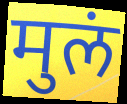
मुलं